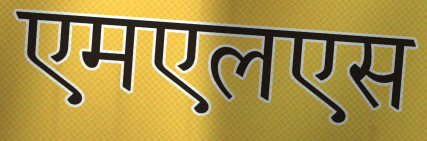
एमएलएस